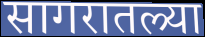
सागरातल्या